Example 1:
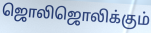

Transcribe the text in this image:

ஜொலிஜொலிக்கும்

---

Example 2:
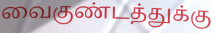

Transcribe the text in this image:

வைகுண்டத்துக்கு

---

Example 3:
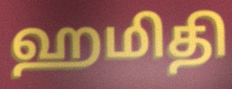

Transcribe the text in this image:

ஹமிதி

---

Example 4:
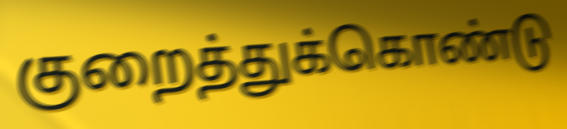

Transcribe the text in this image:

குறைத்துக்கொண்டு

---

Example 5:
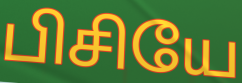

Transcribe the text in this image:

பிசியே